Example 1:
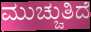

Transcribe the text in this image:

ಮುಚ್ಚುತಿದೆ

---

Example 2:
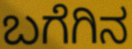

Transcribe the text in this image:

ಬಗೆಗಿನ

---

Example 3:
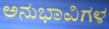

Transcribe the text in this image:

ಅನುಭಾವಿಗಳ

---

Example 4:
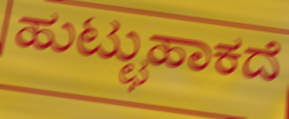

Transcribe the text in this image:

ಹುಟ್ಟುಹಾಕದೆ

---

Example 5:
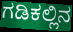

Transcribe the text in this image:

ಗಡಿಕಲ್ಲಿನ